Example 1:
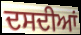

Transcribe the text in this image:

ਦਸਦੀਆਂ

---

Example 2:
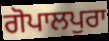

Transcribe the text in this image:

ਗੋਪਾਲਪੁਰਾ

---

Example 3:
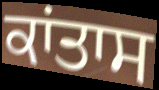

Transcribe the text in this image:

ਕਾਂਤਾਸ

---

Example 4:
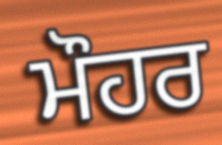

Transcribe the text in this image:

ਮੌਹਰ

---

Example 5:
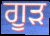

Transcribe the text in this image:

ਗੂੜ